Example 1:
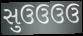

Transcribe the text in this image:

સુઉઉઉઉ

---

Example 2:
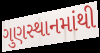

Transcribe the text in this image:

ગુણસ્થાનમાંથી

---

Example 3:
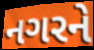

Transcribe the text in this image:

નગરને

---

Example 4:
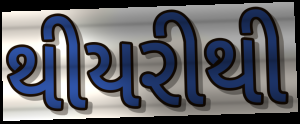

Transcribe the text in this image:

થીયરીથી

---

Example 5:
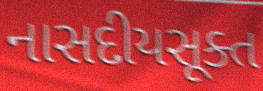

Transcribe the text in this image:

નાસદીયસૂક્ત